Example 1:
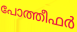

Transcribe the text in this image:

പോത്തീഫർ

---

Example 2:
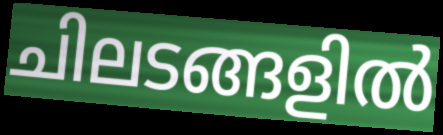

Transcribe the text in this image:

ചിലടങ്ങളിൽ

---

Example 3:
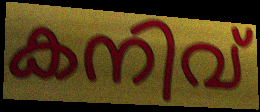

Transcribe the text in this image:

കനിവ്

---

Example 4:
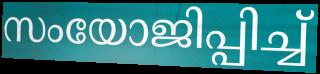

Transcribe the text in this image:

സംയോജിപ്പിച്ച്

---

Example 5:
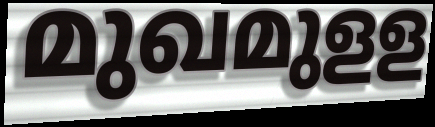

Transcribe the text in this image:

മുഖമുളള